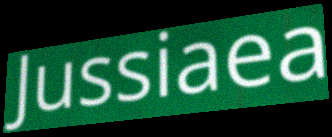
Jussiaea